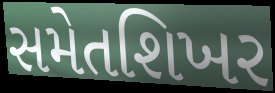
સમેતશિખર